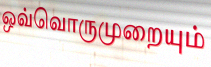
ஒவ்வொருமுறையும்